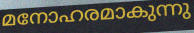
മനോഹരമാകുന്നു